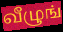
வீழுங்